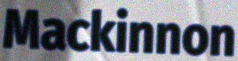
Mackinnon